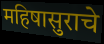
महिषासुराचे